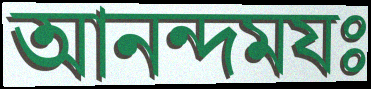
আনন্দমযঃ